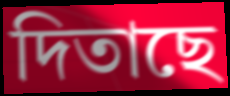
দিতাছে